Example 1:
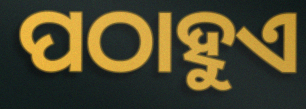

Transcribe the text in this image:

ପଠାହୁଏ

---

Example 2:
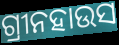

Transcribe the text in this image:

ଗ୍ରୀନହାଉସ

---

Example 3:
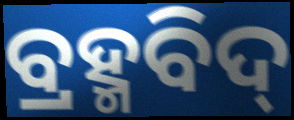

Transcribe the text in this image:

ବ୍ରହ୍ମବିଦ୍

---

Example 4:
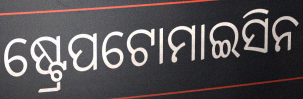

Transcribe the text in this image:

ଷ୍ଟ୍ରେପଟୋମାଇସିନ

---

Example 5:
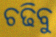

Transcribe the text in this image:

ଚଢିବୁ